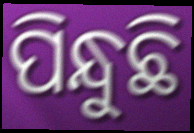
ପିନ୍ଧୁଛି